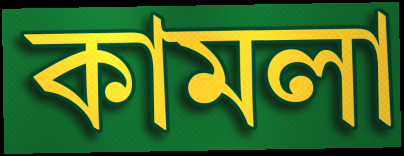
কামলা